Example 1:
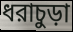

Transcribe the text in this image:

ধরাচুড়া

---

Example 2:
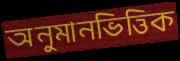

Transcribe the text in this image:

অনুমানভিত্তিক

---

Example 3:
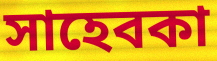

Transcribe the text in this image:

সাহেবকা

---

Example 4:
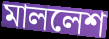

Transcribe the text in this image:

মাললেশ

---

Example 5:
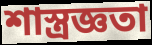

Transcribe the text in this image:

শাস্ত্রজ্ঞতা